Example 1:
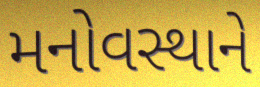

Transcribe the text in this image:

મનોવસ્થાને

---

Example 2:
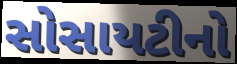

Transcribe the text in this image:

સોસાયટીનો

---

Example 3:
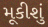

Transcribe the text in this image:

મૂકીશું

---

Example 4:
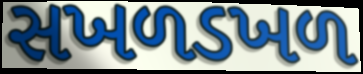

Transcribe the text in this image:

સખળડખળ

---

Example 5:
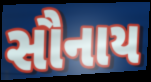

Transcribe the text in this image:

સૌનાય